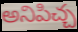
అనిపిచ్చ